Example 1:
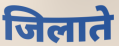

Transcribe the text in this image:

जिलाते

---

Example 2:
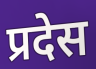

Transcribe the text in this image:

प्रदेस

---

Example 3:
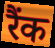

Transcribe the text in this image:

रैंक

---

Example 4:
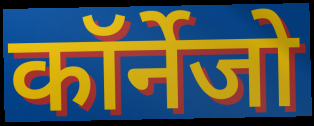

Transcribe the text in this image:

कॉर्नेजो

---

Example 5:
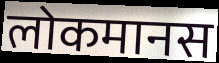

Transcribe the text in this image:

लोकमानस